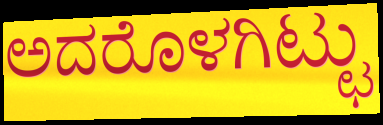
ಅದರೊಳಗಿಟ್ಟು